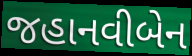
જહાનવીબેન